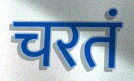
चरतं